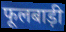
फूलबाड़ी